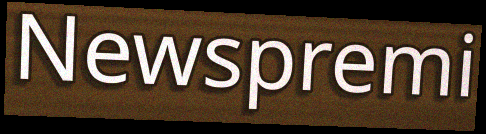
Newspremi